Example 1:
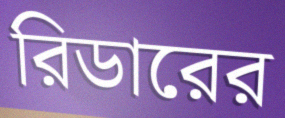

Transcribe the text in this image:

রিডারের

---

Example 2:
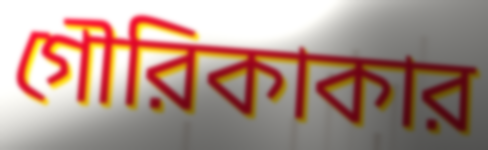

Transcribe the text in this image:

গৌরিকাকার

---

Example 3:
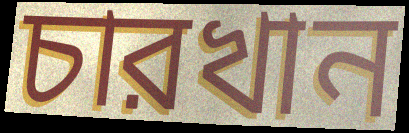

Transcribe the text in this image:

চারখান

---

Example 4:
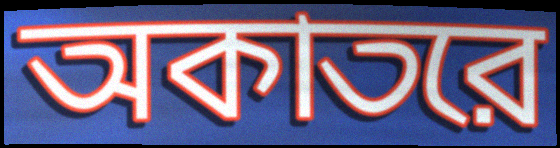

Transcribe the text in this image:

অকাতরে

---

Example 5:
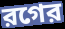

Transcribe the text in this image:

রগের